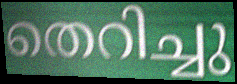
തെറിച്ചു